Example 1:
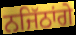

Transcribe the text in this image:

ਨਜਿੱਠਾਂਗੇ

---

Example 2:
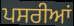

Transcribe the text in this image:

ਪਸਰੀਆਂ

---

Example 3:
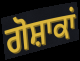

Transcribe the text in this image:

ਗੋਸ਼ਾਕਾਂ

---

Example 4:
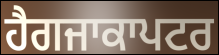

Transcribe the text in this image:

ਹੈਗਜਾਕਾਪਟਰ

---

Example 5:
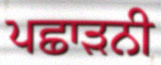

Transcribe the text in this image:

ਪਛਾੜਨੀ